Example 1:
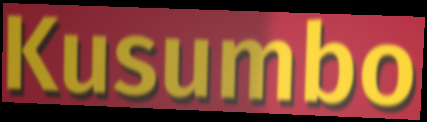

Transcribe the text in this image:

Kusumbo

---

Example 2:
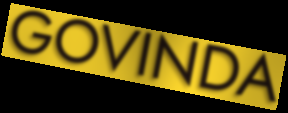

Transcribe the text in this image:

GOVINDA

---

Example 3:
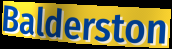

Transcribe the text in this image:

Balderston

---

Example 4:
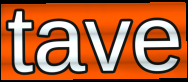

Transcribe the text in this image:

tave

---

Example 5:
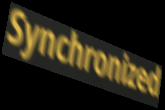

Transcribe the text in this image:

Synchronized